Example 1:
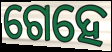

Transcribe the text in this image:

ଗେହେ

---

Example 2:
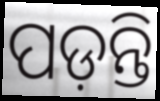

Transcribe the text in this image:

ପଡ଼ନ୍ତି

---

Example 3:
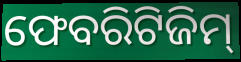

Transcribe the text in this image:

ଫେବରିଟିଜିମ୍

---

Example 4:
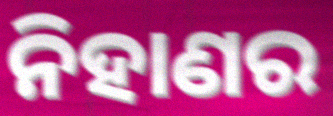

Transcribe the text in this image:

ନିହାଣର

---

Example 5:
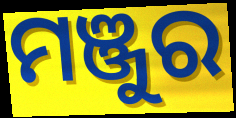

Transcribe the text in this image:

ମଞ୍ଜୁର